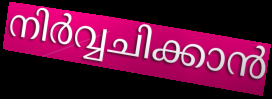
നിർവ്വചിക്കാൻ